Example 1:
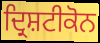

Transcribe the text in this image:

ਦ੍ਰਿਸ਼ਟੀਕੋਨ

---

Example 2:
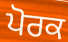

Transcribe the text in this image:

ਪੋਰਕ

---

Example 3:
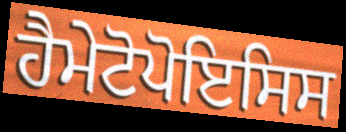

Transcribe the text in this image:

ਹੈਮੇਟੋਪੋਇਸਿਸ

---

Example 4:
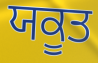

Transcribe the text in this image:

ਯਕੂਤ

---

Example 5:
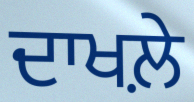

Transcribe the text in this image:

ਦਾਖਲ਼ੇ